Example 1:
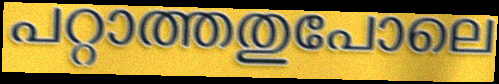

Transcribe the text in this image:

പറ്റാത്തതുപോലെ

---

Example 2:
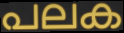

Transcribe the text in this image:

പലക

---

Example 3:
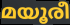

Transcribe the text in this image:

മയൂരീ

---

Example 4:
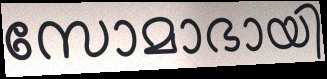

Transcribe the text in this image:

സോമാഭായി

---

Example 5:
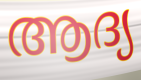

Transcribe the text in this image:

ആദ്യ